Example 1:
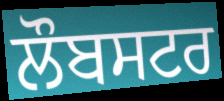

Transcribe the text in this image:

ਲੌਬਸਟਰ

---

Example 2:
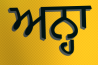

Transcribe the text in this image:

ਅਨ੍ਹਾ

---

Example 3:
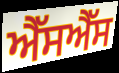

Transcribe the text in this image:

ਐੱਸਐੱਸ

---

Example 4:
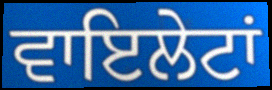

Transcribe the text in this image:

ਵਾਇਲੇਟਾਂ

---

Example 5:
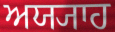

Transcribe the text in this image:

ਅਯ੍ਯਾਹ